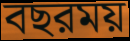
বছরময়